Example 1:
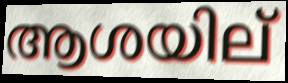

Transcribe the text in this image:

ആശയില്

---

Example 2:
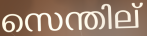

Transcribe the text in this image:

സെന്തില്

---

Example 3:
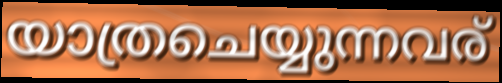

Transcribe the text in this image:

യാത്രചെയ്യുന്നവര്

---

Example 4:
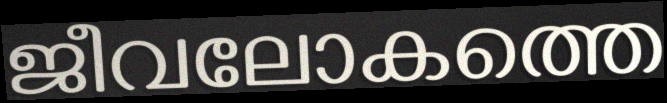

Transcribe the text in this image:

ജീവലോകത്തെ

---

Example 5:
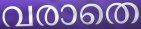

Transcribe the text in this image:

വരാതെ